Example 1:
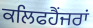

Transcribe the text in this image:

ਕਲਿਫਹੈਂਜਰਾਂ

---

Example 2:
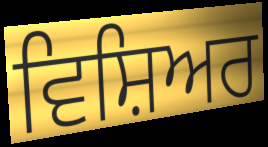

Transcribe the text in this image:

ਵਿਸ਼ਿਅਰ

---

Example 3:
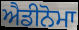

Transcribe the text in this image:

ਐਡੀਨੋਮਾ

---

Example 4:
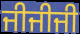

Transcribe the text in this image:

ਜੀਜੀਜੀ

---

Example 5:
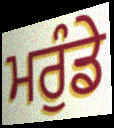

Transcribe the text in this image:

ਮਰੁੰਡੇ